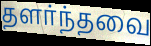
தளர்ந்தவை